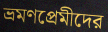
ভ্রমণপ্রেমীদের